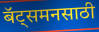
बॅट्समनसाठी